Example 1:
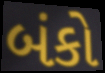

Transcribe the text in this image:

બંકો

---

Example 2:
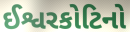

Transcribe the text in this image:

ઈશ્વરકોટિનો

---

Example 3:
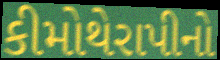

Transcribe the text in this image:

કીમોથેરાપીનો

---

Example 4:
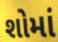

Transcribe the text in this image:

શોમાં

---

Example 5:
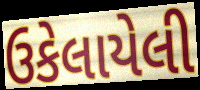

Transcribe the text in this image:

ઉકેલાયેલી